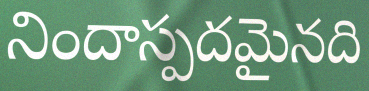
నిందాస్పదమైనది